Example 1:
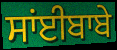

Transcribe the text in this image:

ਸਾਂਈਬਾਬੇ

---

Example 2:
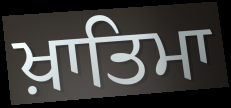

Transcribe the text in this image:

ਖ਼ਾਤਿਮਾ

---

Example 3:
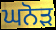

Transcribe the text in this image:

ਘਨੋੜ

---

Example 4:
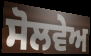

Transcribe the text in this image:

ਸੋਲਵੇਅ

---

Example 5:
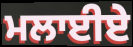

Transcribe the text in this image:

ਮਲਾਈਏ